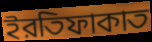
ইরতিফাকাত